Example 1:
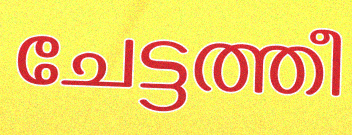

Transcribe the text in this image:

ചേട്ടത്തീ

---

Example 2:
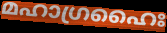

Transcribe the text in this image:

മഹാഗ്രഹൈഃ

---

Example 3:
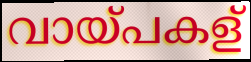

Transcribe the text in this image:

വായ്പകള്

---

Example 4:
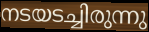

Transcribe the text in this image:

നടയടച്ചിരുന്നു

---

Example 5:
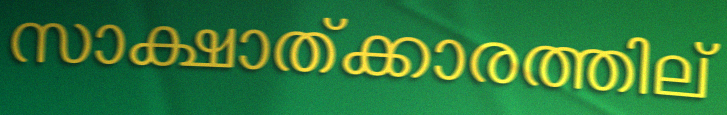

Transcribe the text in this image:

സാക്ഷാത്ക്കാരത്തില്